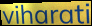
viharati